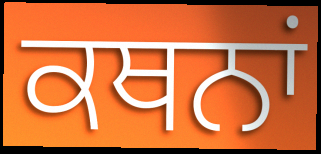
ਕਥਨਾਂ